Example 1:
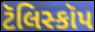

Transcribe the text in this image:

ટૅલિસ્કૉપ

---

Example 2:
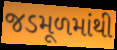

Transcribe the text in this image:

જડમૂળમાંથી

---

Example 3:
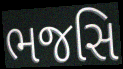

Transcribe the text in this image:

ભજસિ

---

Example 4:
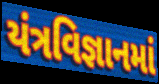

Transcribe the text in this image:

યંત્રવિજ્ઞાનમાં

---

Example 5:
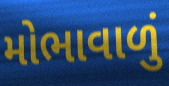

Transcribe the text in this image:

મોભાવાળું